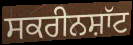
ਸਕਰੀਨਸ਼ਾੱਟ